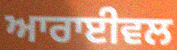
ਆਰਾਈਵਲ